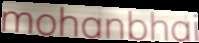
mohanbhai